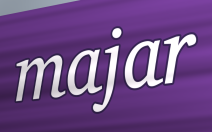
majar